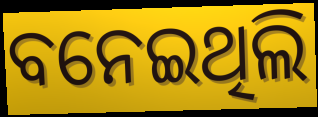
ବନେଇଥିଲି